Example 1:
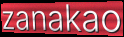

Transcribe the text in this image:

zanakao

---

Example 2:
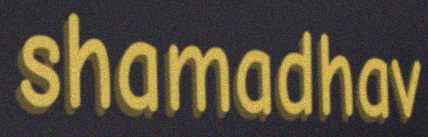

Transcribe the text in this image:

shamadhav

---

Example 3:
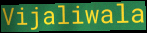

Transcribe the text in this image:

Vijaliwala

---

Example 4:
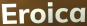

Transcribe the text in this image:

Eroica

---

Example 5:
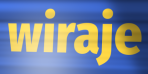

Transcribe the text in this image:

wiraje